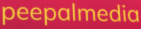
peepalmedia